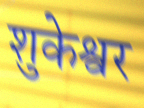
शुकेश्वर